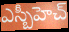
ఎస్బీహెచ్